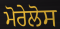
ਮੋਰੇਲੋਸ